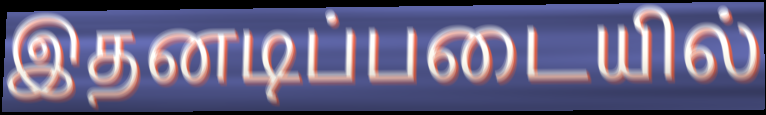
இதனடிப்படையில்